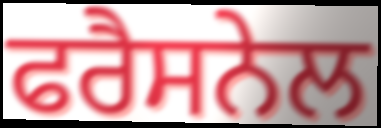
ਫਰੈਸਨੇਲ